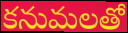
కనుమలతో